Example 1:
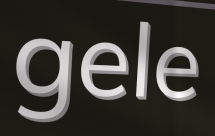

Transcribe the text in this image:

gele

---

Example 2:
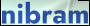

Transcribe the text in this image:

nibram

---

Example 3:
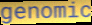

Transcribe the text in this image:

genomic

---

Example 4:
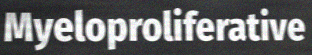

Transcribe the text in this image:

Myeloproliferative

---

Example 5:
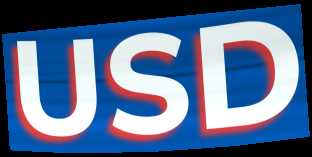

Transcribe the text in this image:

USD